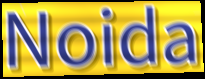
Noida